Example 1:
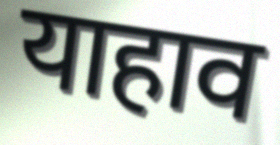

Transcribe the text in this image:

याहाव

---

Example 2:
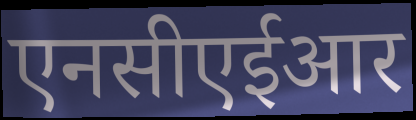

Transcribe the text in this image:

एनसीएईआर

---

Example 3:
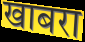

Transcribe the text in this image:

खाबरा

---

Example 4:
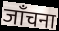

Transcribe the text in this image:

जाँचना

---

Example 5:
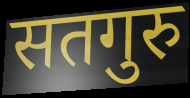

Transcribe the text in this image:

सतगुरु